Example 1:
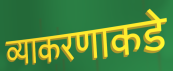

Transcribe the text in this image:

व्याकरणाकडे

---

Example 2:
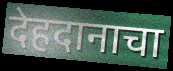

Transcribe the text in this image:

देहदानाचा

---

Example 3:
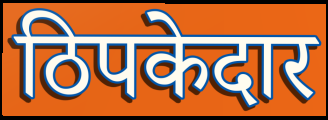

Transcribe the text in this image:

ठिपकेदार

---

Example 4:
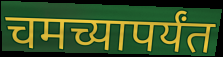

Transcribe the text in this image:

चमच्यापर्यंत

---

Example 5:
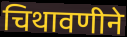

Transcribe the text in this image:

चिथावणीने